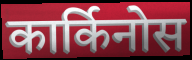
कार्किनोस